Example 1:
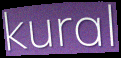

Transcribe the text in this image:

kural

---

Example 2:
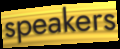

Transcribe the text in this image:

speakers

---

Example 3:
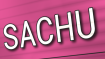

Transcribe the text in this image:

SACHU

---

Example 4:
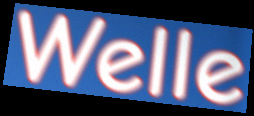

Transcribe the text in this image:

Welle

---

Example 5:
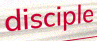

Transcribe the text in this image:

disciple